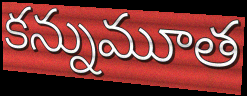
కన్నుమూత